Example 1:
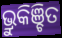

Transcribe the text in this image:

ଭ୍ରୁକିଞ୍ଚିତ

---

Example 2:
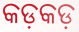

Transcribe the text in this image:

କଡ଼କଡ଼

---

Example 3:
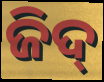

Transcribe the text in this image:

ଜିଦ୍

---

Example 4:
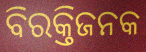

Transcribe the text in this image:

ବିରକ୍ତିଜନକ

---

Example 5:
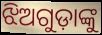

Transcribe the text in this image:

ଝିଅଗୁଡ଼ାଙ୍କୁ